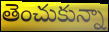
తెంచుకున్నా